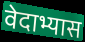
वेदाभ्यास